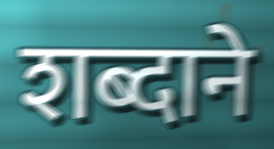
शब्दाने